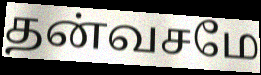
தன்வசமே